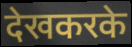
देखकरके